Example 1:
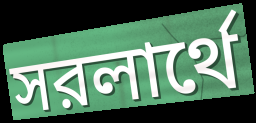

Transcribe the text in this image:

সরলার্থে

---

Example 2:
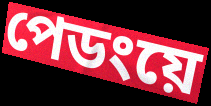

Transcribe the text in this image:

পেডংয়ে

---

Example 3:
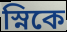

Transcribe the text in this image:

স্নিকে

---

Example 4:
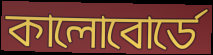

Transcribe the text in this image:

কালোবোর্ডে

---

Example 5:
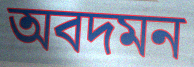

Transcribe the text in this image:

অবদমন